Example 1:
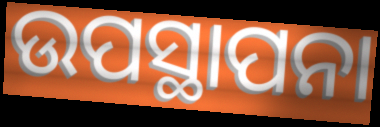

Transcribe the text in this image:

ଉପସ୍ଥାପନା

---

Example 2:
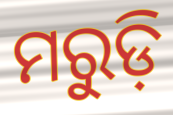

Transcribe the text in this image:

ମରୁଡ଼ି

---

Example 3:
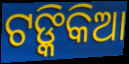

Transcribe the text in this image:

ଟଙ୍କିକିଆ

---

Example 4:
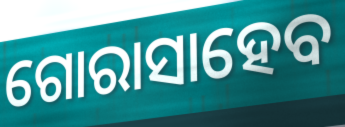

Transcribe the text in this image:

ଗୋରାସାହେବ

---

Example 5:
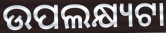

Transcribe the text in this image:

ଉପଲକ୍ଷ୍ୟଟା